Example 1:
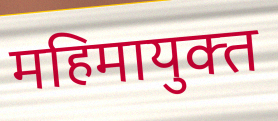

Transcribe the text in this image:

महिमायुक्‍त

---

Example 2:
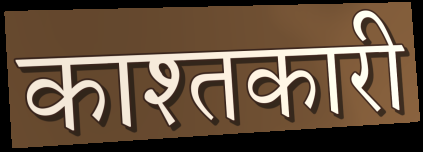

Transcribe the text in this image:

काश्तकारी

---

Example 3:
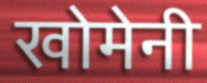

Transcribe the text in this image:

खोमेनी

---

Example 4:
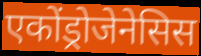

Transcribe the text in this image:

एकोंड्रोजेनेसिस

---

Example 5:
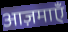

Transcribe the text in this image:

आज़माएँ